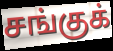
சங்குக்